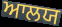
ਆਲਯ